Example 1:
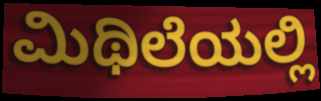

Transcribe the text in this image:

ಮಿಥಿಲೆಯಲ್ಲಿ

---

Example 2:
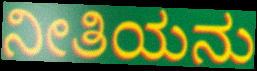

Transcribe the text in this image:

ನೀತಿಯನು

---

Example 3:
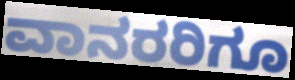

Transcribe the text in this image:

ವಾನರರಿಗೂ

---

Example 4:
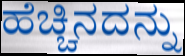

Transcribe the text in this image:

ಹೆಚ್ಚಿನದನ್ನು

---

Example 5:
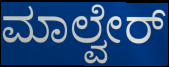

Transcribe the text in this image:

ಮಾಲ್ವೇರ್